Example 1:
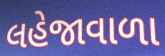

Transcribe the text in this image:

લહેજાવાળા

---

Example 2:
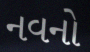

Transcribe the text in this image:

નવનો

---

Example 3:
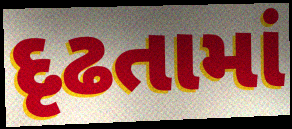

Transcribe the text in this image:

દૃઢતામાં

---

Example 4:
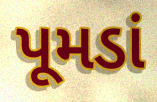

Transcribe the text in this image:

પૂમડાં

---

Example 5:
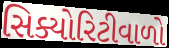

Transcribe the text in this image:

સિક્યોરિટીવાળો